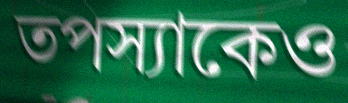
তপস্যাকেও